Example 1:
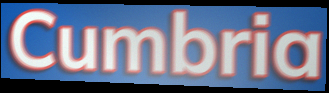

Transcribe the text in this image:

Cumbria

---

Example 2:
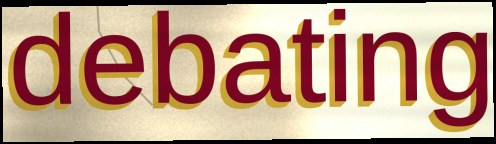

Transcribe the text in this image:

debating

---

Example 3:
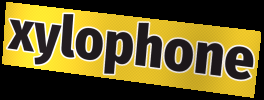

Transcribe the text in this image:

xylophone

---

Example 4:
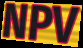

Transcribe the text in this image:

NPV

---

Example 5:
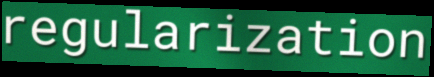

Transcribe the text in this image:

regularization